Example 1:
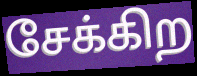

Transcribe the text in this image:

சேக்கிற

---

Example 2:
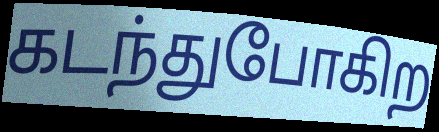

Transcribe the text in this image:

கடந்துபோகிற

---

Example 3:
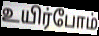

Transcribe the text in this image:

உயிர்போம்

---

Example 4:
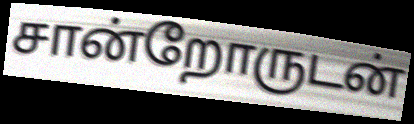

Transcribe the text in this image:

சான்றோருடன்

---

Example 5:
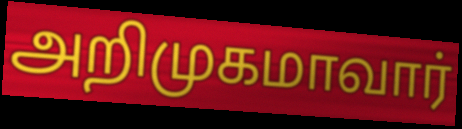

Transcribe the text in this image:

அறிமுகமாவார்